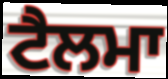
ਟੈਲਮਾ